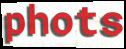
phots